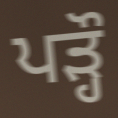
ਪੜ੍ਹੌ